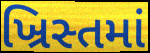
ખ્રિસ્તમાં